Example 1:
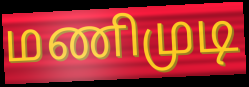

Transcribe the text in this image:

மணிமுடி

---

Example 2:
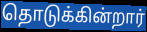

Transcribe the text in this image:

தொடுக்கின்றார்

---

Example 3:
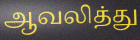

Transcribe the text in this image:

ஆவலித்து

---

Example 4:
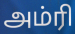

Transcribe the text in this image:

அம்ரி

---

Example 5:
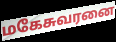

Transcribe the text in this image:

மகேசுவரனை